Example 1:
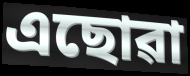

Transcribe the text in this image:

এছোৱা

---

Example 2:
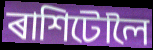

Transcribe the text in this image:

ৰাশিটোলৈ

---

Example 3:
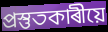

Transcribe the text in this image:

প্ৰস্তুতকাৰীয়ে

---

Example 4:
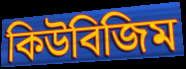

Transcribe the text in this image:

কিউবিজিম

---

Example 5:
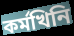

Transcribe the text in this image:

কৰ্মখিনি